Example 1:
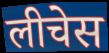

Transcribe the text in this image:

लीचेस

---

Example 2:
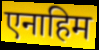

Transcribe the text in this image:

एनाहिम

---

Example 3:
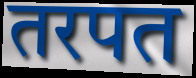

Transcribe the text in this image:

तरपत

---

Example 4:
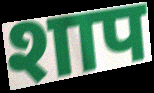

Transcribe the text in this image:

शाप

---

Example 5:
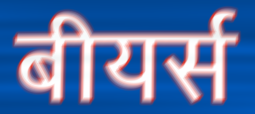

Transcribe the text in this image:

बीयर्स